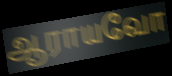
ஆராயவோ